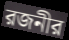
রজনীর